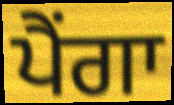
ਪੈਂਗਾ